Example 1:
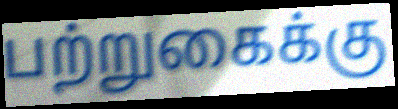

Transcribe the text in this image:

பற்றுகைக்கு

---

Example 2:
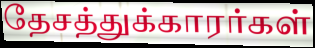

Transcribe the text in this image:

தேசத்துக்காரர்கள்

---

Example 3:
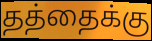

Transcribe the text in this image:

தத்தைக்கு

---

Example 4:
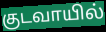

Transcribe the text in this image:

குடவாயில்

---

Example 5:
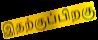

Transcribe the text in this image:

இதற்குப்பிறகு